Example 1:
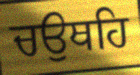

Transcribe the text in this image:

ਚਉਥਹਿ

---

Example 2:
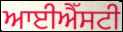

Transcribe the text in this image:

ਆਈਐੱਸਟੀ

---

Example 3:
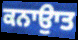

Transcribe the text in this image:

ਕਨਾਉਾਤ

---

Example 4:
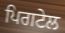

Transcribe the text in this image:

ਪਿਗਟੇਲ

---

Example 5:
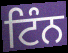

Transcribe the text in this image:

ਟਿੰਨ